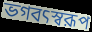
ভগবৎস্বরূপ